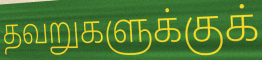
தவறுகளுக்குக்